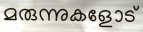
മരുന്നുകളോട്